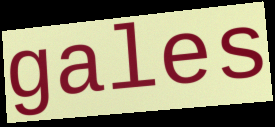
gales